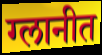
ग्लानीत